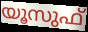
യൂസുഫ്